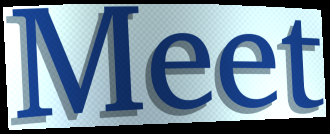
Meet